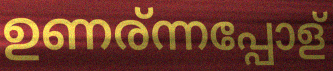
ഉണര്ന്നപ്പോള്